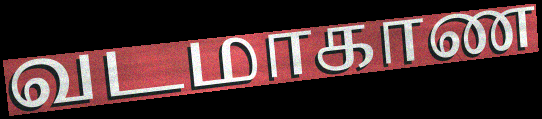
வடமாகாண